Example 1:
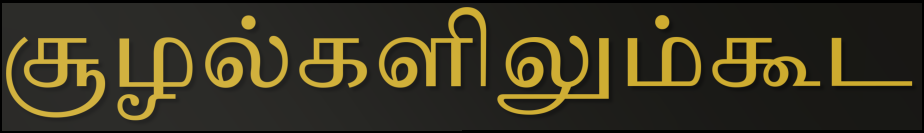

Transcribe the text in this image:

சூழல்களிலும்கூட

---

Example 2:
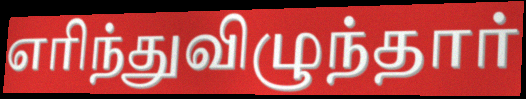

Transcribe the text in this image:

எரிந்துவிழுந்தார்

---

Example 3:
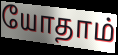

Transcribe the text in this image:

யோதாம்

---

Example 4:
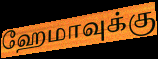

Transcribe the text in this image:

ஹேமாவுக்கு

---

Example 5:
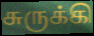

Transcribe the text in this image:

சுருக்கி